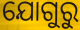
ଯୋଗୁରୁ